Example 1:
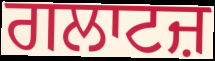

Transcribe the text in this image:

ਗਲਾਟਜ਼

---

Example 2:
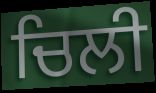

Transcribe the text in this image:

ਚਿਲੀ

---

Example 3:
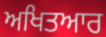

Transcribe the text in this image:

ਅਖਿਤਆਰ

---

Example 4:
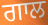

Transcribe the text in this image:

ਗਾਲ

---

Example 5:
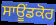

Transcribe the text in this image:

ਸਾਊਂਡਕੋਰ